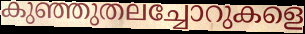
കുഞ്ഞുതലച്ചോറുകളെ